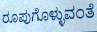
ರೂಪುಗೊಳ್ಳುವಂತೆ